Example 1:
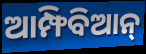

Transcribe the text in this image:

ଆମ୍ଫିବିଆନ୍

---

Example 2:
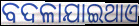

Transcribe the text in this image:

ବଦଳାଯାଇଥାଏ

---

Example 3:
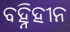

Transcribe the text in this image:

ବହ୍ନିହୀନ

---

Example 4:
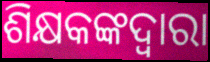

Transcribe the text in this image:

ଶିକ୍ଷକଙ୍କଦ୍ଵାରା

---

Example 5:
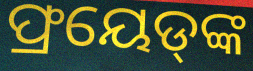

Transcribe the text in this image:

ଫ୍ରୟେଡ୍‍ଙ୍କ